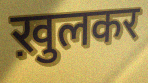
ख़ुलकर